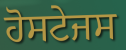
ਹੋਸਟੇਜਸ